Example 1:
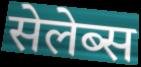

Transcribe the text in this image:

सेलेब्स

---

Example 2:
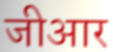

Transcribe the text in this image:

जीआर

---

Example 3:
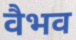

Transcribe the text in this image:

वैभव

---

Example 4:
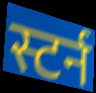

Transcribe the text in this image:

स्टर्न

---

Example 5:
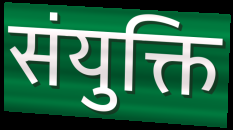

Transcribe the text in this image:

संयुक्ति